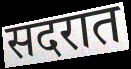
सदरात